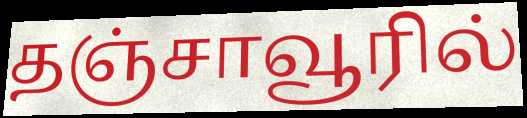
தஞ்சாவூரில்